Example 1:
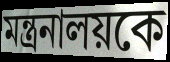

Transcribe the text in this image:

মন্ত্রনালয়কে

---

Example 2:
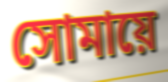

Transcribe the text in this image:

সোমায়ে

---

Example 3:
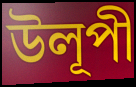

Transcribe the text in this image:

উলূপী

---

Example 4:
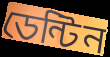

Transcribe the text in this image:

ডেন্টিন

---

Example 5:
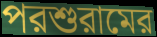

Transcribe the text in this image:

পরশুরামের